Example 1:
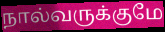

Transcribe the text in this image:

நால்வருக்குமே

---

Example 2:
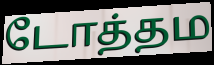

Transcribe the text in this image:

டோத்தம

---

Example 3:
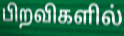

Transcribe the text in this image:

பிறவிகளில்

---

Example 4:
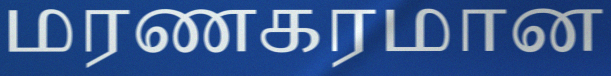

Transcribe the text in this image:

மரணகரமான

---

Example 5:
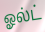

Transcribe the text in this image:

ஓல்ட்